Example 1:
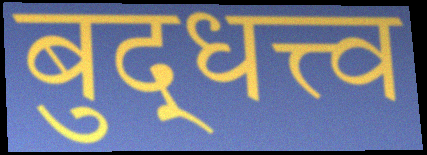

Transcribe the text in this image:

बुद्धत्त्व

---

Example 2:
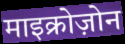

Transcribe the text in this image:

माइक्रोज़ोन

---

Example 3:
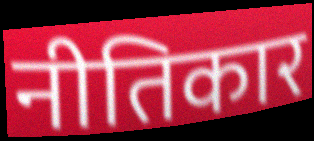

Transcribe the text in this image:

नीतिकार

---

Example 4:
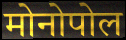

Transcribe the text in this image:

मोनोपोल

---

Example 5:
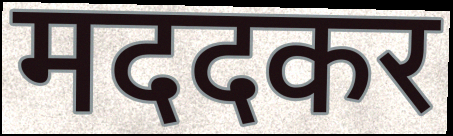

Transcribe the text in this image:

मददकर